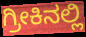
ಗ್ರೀಕಿನಲ್ಲಿ